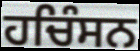
ਹਚਿੰਸਨ